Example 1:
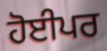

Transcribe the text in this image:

ਹੋਈਪਰ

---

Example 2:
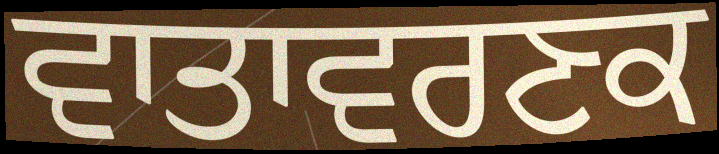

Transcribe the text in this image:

ਵਾਤਾਵਰਣਕ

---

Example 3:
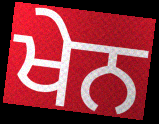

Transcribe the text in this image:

ਖੇਨ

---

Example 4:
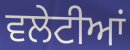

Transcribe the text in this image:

ਵਲੇਟੀਆਂ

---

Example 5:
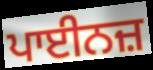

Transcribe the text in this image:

ਪਾਈਨਜ਼